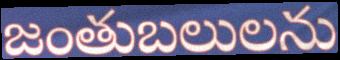
జంతుబలులను